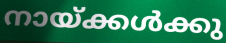
നായ്ക്കൾക്കു